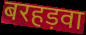
बरहड़वा